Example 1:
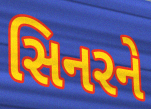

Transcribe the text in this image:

સિનરને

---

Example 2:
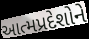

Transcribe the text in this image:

આત્મપ્રદેશોને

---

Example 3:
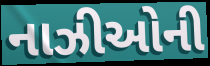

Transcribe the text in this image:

નાઝીઓની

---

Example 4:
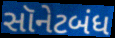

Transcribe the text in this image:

સૉનેટબંધ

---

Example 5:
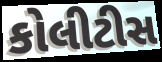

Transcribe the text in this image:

કોલીટીસ